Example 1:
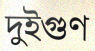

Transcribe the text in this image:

দুইগুণ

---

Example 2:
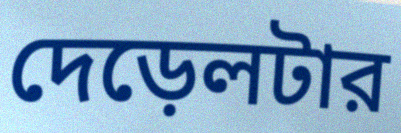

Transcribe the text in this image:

দেড়েলটার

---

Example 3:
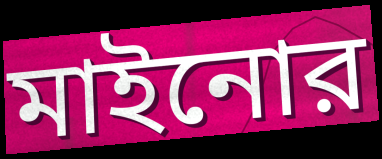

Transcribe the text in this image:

মাইনোর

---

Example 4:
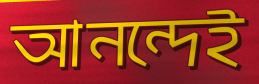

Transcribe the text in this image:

আনন্দেই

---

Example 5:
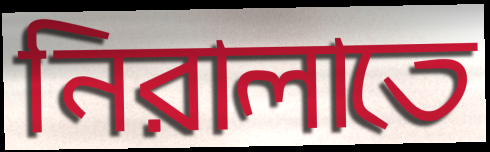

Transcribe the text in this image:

নিরালাতে